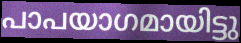
പാപയാഗമായിട്ടു